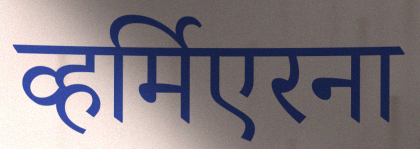
व्हर्मिएरना